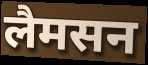
लैमसन